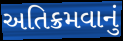
અતિક્રમવાનું